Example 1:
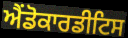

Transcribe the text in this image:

ਐਂਡੋਕਾਰਡੀਟਿਸ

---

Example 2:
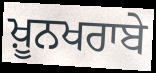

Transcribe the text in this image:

ਖ਼ੂਨਖਰਾਬੇ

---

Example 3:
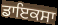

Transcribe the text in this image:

ਡਾਇਕਸਾ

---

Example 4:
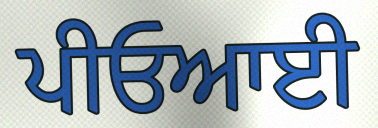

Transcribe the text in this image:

ਪੀਓਆਈ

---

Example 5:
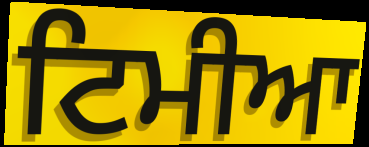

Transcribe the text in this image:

ਟਿਮੀਆ